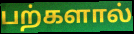
பற்களால்